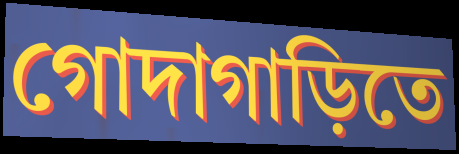
গোদাগাড়িতে